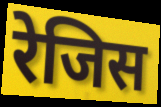
रेजिस